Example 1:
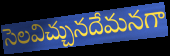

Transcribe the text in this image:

సెలవిచ్చునదేమనగా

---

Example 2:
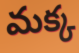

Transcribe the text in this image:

మక్క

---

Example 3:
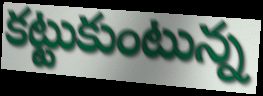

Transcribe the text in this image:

కట్టుకుంటున్న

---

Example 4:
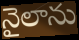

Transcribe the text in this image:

నైలాను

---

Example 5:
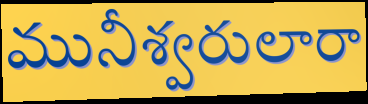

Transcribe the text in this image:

మునీశ్వరులారా